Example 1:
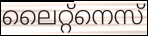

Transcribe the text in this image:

ലൈറ്റ്നെസ്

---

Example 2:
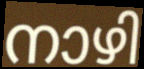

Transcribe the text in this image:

നാഴി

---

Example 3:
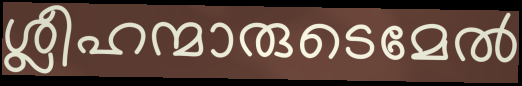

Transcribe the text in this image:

ശ്ലീഹന്മാരുടെമേൽ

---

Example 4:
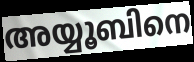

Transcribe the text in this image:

അയ്യൂബിനെ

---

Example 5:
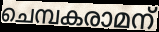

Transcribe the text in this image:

ചെമ്പകരാമന്